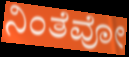
ನಿಂತೆವೋ